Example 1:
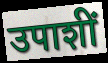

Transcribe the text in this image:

उपाशीं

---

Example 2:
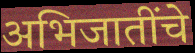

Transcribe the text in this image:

अभिजातींचे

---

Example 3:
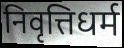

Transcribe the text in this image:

निवृत्तिधर्म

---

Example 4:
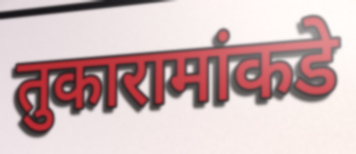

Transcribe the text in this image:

तुकारामांकडे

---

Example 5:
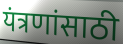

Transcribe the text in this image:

यंत्रणांसाठी